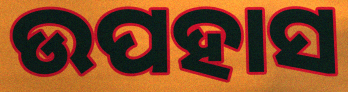
ଉପହାସ